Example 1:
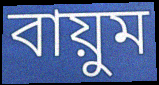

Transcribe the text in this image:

বায়ুম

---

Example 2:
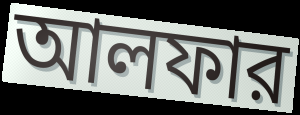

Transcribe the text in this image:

আলফার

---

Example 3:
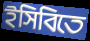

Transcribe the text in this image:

ইসিবিতে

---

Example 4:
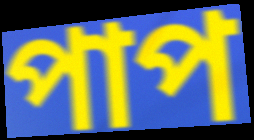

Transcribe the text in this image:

পাপ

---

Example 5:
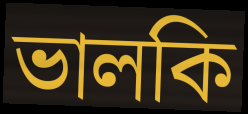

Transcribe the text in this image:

ভালকি